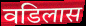
वडिलास